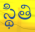
స్థితి